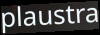
plaustra